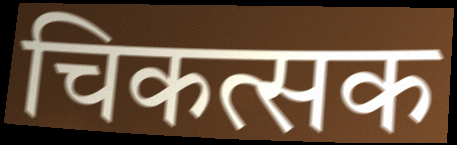
चिकत्सक